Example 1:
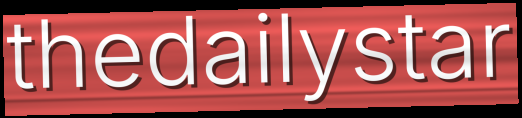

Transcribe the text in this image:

thedailystar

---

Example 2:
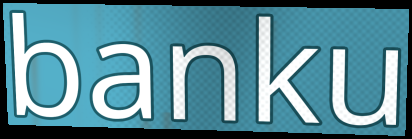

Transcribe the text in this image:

banku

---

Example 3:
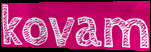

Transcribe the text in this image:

kovam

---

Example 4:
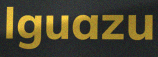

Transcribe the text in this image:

Iguazu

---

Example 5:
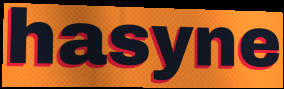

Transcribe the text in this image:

hasyne